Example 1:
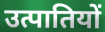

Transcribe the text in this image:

उत्पातियों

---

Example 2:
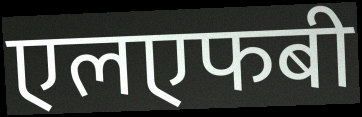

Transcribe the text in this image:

एलएफबी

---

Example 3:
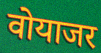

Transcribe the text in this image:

वोयाजर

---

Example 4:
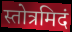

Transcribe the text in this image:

स्तोत्रमिदं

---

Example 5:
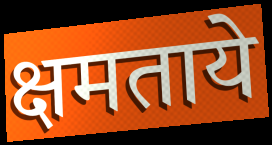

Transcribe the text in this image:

क्षमताये